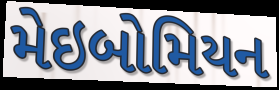
મેઇબોમિયન